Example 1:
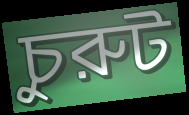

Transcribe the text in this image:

চুরুট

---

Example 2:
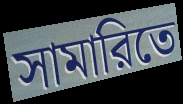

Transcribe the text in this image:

সামারিতে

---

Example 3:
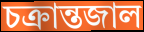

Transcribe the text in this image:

চক্রান্তজাল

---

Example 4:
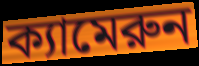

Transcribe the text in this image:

ক্যামেরুন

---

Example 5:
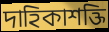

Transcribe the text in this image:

দাহিকাশক্তি